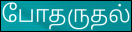
போதருதல்